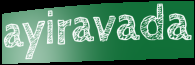
ayiravada